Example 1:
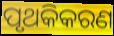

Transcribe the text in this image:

ପୃଥକିକରଣ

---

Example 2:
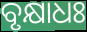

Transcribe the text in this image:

ବୃକ୍ଷାଧଃ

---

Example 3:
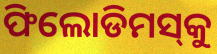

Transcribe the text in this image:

ଫିଲୋଡିମସ୍‌କୁ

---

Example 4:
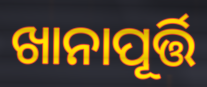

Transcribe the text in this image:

ଖାନାପୂର୍ତ୍ତି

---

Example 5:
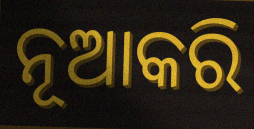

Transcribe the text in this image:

ନୂଆକରି